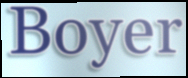
Boyer